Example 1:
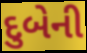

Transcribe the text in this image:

દુબેની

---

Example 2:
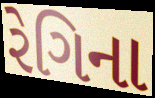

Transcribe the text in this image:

રેગિના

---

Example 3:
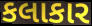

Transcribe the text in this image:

કલાકાર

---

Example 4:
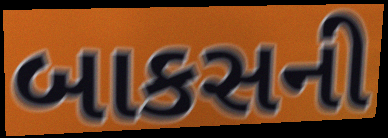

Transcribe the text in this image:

બાકસની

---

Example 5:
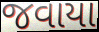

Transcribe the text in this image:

જવાયા